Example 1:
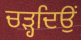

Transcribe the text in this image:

ਚੜ੍ਹ੍ਹਦਿਉਂ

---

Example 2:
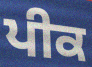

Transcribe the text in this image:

ਪੀਕ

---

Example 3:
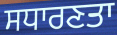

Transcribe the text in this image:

ਸਧਾਰਣਤਾ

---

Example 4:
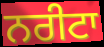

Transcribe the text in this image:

ਨਰੀਟਾ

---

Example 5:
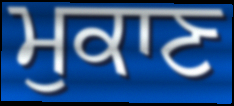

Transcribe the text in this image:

ਮੁਕਾਣ